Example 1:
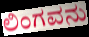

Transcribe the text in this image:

ಲಿಂಗವನು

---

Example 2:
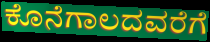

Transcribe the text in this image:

ಕೊನೆಗಾಲದವರೆಗೆ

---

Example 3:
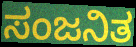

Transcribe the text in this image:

ಸಂಜನಿತ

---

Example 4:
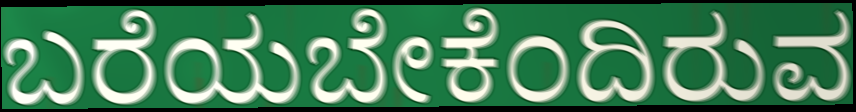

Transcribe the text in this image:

ಬರೆಯಬೇಕೆಂದಿರುವ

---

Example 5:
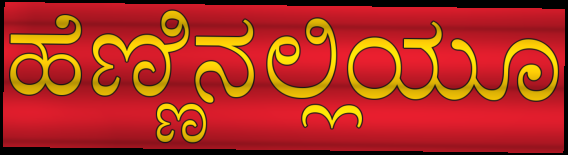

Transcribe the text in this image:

ಹೆಣ್ಣಿನಲ್ಲಿಯೂ